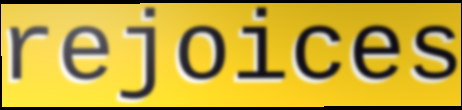
rejoices